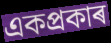
একপ্ৰকাৰ